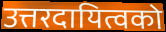
उत्तरदायित्वको